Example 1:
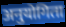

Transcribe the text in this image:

अनुयोगिता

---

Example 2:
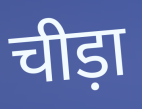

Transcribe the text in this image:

चीड़ा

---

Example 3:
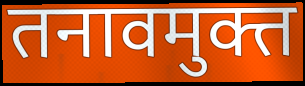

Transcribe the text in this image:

तनावमुक्त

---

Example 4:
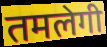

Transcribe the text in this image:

तमलेगी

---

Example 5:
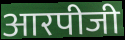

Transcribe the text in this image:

आरपीजी